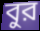
বুর